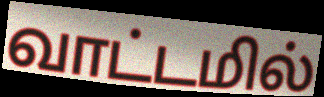
வாட்டமில்